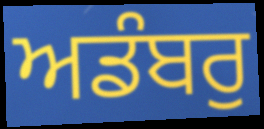
ਅਡੰਬਰੁ